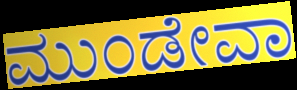
ಮುಂಡೇವಾ